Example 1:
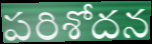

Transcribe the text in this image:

పరిశోదన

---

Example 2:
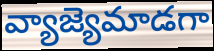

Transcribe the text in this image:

వ్యాజ్యెమాడగా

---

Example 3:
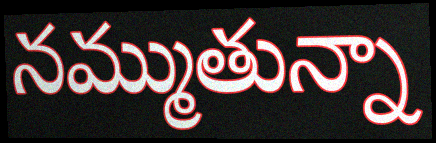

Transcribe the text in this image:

నమ్ముతున్నా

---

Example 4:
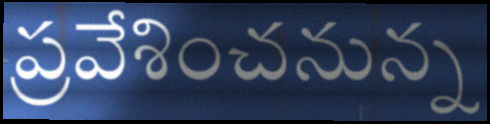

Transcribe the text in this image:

ప్రవేశించనున్న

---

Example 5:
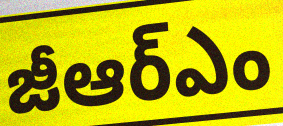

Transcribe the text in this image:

జీఆర్ఎం